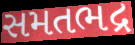
સમતભદ્ર